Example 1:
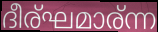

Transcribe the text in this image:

ദീര്ഘമാര്ന്ന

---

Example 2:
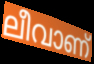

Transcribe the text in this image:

ലീവാണ്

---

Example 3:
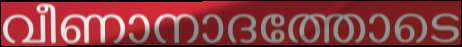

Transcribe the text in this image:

വീണാനാദത്തോടെ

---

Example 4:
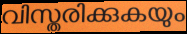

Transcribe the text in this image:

വിസ്തരിക്കുകയും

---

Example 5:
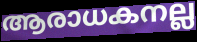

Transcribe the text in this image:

ആരാധകനല്ല